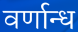
वर्णान्ध